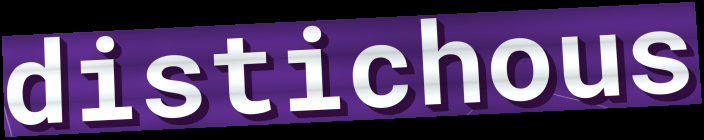
distichous